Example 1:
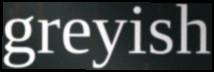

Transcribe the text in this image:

greyish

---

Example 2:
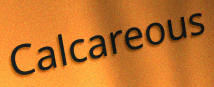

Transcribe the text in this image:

Calcareous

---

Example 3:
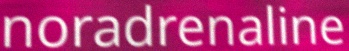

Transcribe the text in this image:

noradrenaline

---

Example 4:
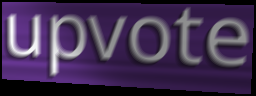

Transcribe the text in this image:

upvote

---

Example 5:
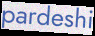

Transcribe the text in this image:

pardeshi